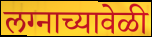
लग्नाच्यावेळी